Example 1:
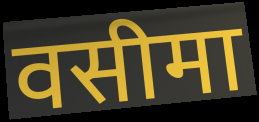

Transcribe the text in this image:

वसीमा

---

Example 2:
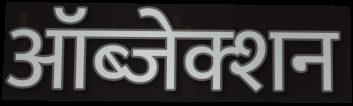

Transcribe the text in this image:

ऑब्‍जेक्‍शन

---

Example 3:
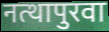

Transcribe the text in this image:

नत्थापुरवा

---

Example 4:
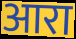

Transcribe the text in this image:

आरा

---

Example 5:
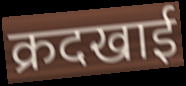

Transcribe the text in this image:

क्रदखाई